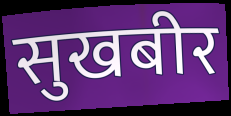
सुखबीर